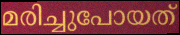
മരിച്ചുപോയത്